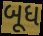
બૂધ